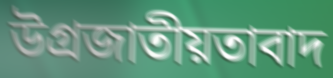
উগ্রজাতীয়তাবাদ